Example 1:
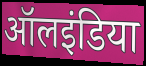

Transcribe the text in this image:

ऑलइंडिया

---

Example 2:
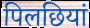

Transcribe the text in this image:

पिलछियां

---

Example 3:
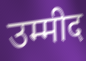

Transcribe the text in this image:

उम्‍मीद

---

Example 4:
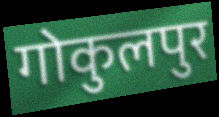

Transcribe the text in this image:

गोकुलपुर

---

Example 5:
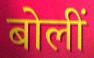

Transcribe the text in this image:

बोलीं